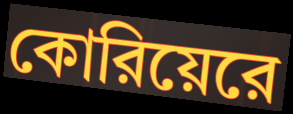
কোরিয়েরে